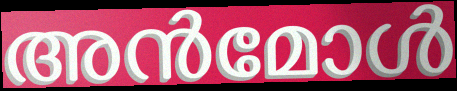
അൻമോൾ